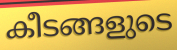
കീടങ്ങളുടെ